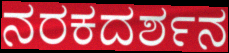
ನರಕದರ್ಶನ